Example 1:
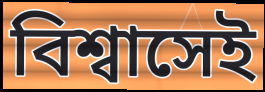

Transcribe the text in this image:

বিশ্বাসেই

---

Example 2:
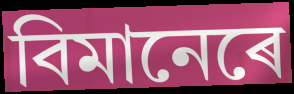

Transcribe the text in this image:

বিমানেৰে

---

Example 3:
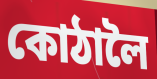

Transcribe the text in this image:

কোঠালৈ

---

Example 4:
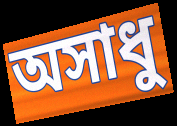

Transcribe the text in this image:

অসাধু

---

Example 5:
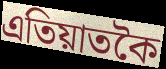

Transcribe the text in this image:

এতিয়াতকৈ